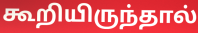
கூறியிருந்தால்